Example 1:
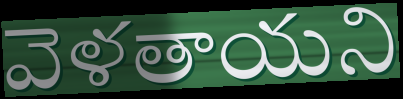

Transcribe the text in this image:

వెళతాయని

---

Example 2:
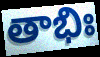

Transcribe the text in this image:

తాభిః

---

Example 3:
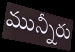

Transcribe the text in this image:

మున్నీరు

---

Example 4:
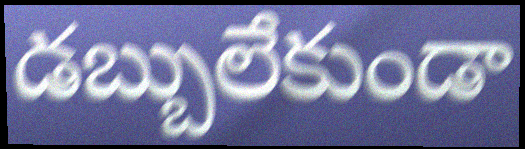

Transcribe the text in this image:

డబ్బులేకుండా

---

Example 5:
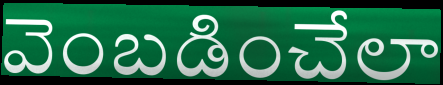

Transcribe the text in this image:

వెంబడించేలా